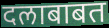
दलाबाबत